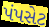
પંપસેટ